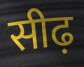
सीढ़